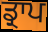
ਡ੍ਰਾਪ